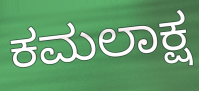
ಕಮಲಾಕ್ಷ